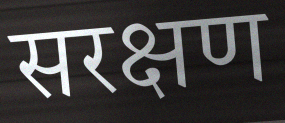
सरक्षण